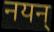
नयन्